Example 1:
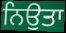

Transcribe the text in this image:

ਨਿਉਤਾ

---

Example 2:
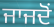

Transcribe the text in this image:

ਜਾਜਦੋਂ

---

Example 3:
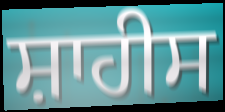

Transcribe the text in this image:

ਸ਼ਾਹੀਸ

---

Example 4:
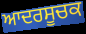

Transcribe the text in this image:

ਆਦਰਸੂਚਕ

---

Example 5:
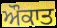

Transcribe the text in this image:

ਔਕਾਤ